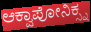
ಆಕ್ವಾಪೋನಿಕ್ಸ್ನ